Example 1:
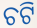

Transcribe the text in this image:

ଚଟି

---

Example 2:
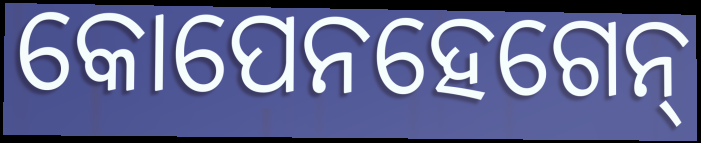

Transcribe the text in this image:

କୋପେନହେଗେନ୍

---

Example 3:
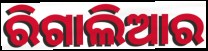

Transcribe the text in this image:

ରିଗାଲିଆର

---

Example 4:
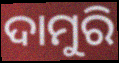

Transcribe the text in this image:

ଦାମୁରି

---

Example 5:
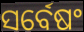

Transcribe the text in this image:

ସର୍ବେଷଂ